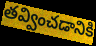
తవ్వించడానికి